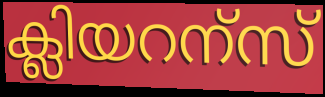
ക്ലിയറന്സ്